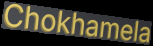
Chokhamela